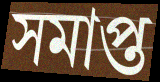
সমাপ্ত